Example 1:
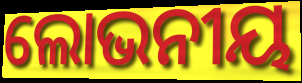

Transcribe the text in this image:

ଲୋଭନୀୟ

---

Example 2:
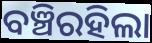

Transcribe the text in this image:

ବଞ୍ଚିରହିଲା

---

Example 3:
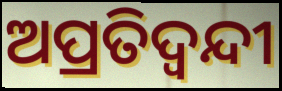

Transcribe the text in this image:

ଅପ୍ରତିଦ୍ବନ୍ଦୀ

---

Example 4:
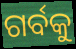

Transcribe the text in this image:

ଗର୍ବକୁ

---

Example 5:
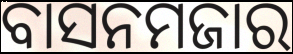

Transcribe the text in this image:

ବାସନମଜାର